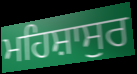
ਮਹਿਸ਼ਾਸੁਰ